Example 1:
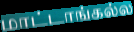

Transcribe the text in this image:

மாட்டாங்கல்ல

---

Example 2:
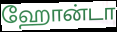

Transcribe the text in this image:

ஹோன்டா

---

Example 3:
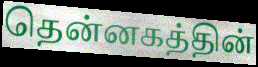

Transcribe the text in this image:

தென்னகத்தின்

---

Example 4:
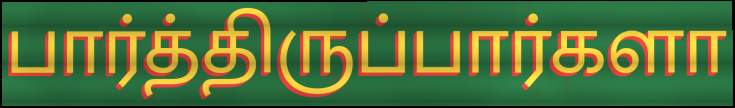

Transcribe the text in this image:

பார்த்திருப்பார்களா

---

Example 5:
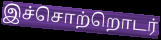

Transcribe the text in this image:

இச்சொற்றொடர்